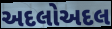
અદલોઅદલ